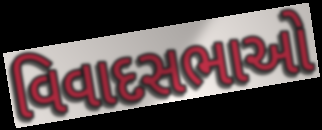
વિવાદસભાઓ